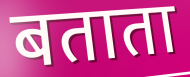
बताता